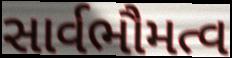
સાર્વભૌમત્વ